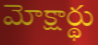
మోక్షార్థు